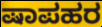
ಷಾಪಹರ